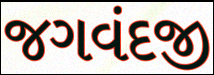
જગવંદજી